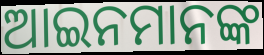
ଆଇନମାନଙ୍କ